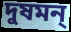
দুষমন্